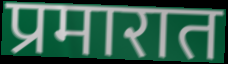
प्रमारात